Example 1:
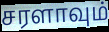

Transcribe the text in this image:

சரளாவும்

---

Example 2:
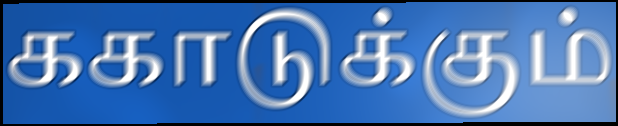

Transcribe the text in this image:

ககாடுக்கும்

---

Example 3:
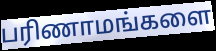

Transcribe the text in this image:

பரிணாமங்களை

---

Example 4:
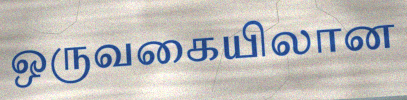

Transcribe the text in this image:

ஒருவகையிலான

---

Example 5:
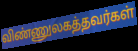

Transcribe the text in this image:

விண்ணுலகத்தவர்கள்